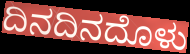
ದಿನದಿನದೊಳು